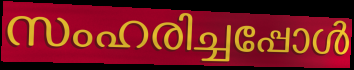
സംഹരിച്ചപ്പോൾ